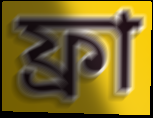
ফ্ৰা